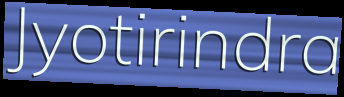
Jyotirindra